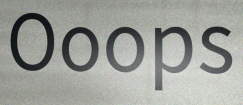
Ooops